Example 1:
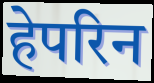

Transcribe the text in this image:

हेपरिन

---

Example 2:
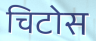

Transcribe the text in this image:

चिटोस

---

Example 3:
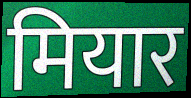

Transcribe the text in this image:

मियार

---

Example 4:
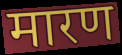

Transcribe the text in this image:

मारण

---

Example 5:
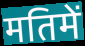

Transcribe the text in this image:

मतिमें